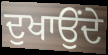
ਦੁਖਾਉਂਦੇ